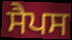
ਸੈਪਸ